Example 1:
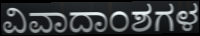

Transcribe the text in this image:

ವಿವಾದಾಂಶಗಳ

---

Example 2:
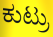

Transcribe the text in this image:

ಕುಟ್ರು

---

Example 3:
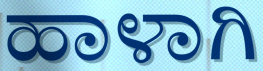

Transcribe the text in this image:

ಹಾಳಾಗಿ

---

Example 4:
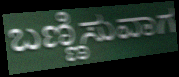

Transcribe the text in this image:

ಬಣ್ಣಿಸುವಾಗ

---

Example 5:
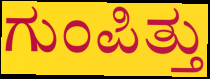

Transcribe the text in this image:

ಗುಂಪಿತ್ತು